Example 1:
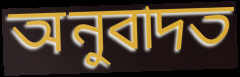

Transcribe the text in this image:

অনুবাদত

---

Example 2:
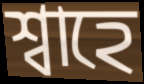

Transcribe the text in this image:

শ্বাহে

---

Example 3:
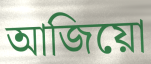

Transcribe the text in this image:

আজিয়ো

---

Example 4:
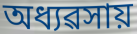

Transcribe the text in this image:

অধ্যৱসায়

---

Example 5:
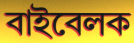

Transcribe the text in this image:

বাইবেলক